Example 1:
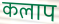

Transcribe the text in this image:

कलाप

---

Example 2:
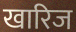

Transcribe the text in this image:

खारिज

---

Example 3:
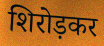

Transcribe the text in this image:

शिरोड़कर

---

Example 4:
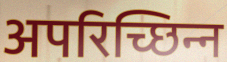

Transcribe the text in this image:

अपरिच्छिन्न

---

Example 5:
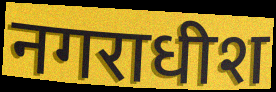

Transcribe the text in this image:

नगराधीश